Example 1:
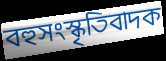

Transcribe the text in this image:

বহুসংস্কৃতিবাদক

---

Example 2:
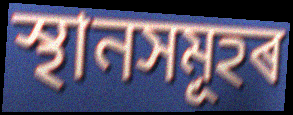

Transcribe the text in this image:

স্থানসমূহৰ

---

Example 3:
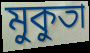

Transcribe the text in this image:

মুকুতা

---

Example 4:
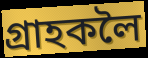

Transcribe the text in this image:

গ্ৰাহকলৈ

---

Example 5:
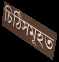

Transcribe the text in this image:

চিঠিসমূহত